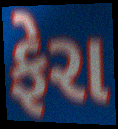
ફેરા